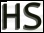
HS